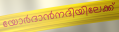
യോർദാൻനദിയിലേക്ക്